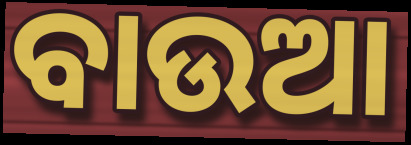
ବାଉଆ